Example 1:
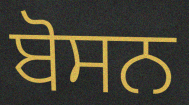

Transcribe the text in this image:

ਬੋਸਨ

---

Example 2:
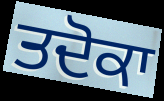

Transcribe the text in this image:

ਤਦੋਕਾ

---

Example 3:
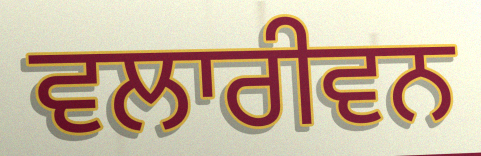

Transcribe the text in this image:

ਵਲਾਰੀਵਨ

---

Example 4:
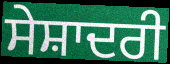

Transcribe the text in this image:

ਸੇਸ਼ਾਦਰੀ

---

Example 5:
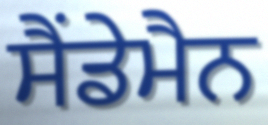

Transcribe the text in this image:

ਸੈਂਡੇਮੈਨ